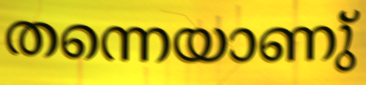
തന്നെയാണു്